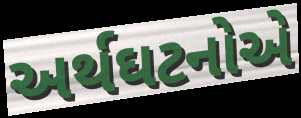
અર્થઘટનોએ